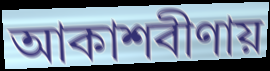
আকাশবীণায়